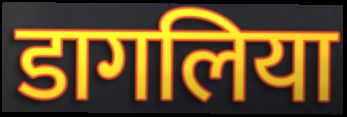
डागलिया